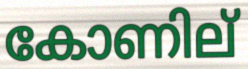
കോണില്